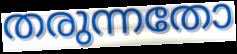
തരുന്നതോ